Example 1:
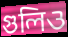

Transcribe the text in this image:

গুলিও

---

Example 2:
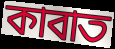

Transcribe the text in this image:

কাবাত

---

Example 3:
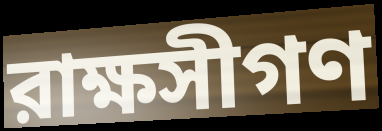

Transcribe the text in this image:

রাক্ষসীগণ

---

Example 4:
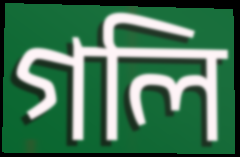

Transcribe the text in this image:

গলি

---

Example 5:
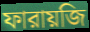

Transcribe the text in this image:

ফারায়জি